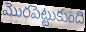
మొరపెట్టుకుంది